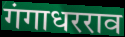
गंगाधरराव